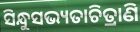
ସିନ୍ଧୁସଭ୍ୟତାଚିତ୍ରାଣି